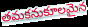
తమకనుకూలమైన